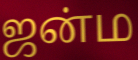
ஜன்ம